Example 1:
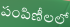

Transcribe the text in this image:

పంపిణీలలో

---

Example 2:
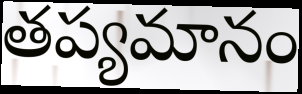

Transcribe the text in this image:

తప్యమానం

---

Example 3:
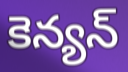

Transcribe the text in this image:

కెన్యన్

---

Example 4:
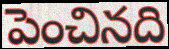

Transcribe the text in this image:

పెంచినది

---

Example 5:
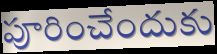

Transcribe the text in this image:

పూరించేందుకు